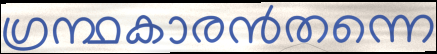
ഗ്രന്ഥകാരൻതന്നെ